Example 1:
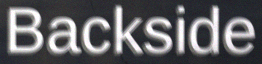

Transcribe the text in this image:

Backside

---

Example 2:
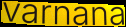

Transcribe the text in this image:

varnana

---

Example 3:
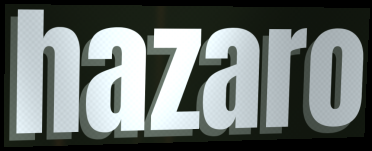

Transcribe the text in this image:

hazaro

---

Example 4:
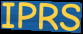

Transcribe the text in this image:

IPRS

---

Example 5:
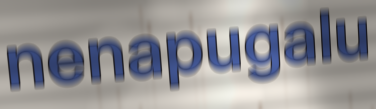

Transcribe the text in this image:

nenapugalu